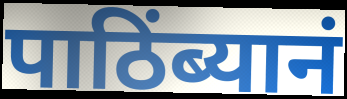
पाठिंब्यानं